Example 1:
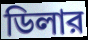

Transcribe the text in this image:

ডিলার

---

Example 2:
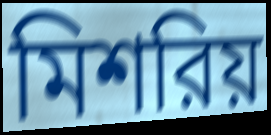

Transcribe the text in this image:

মিশরিয়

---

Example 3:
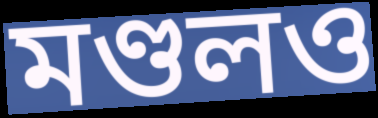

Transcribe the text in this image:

মণ্ডলও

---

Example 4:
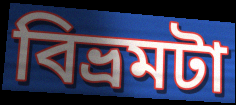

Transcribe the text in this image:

বিভ্রমটা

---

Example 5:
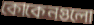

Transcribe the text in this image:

কোকেনগুলো